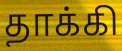
தாக்கி